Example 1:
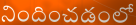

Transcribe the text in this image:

నిందించడంలో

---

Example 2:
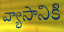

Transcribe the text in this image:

వ్యాసానికి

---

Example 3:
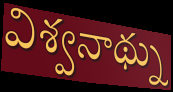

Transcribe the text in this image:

విశ్వనాథ్ను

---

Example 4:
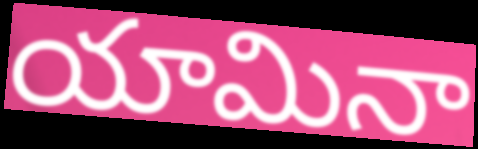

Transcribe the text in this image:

యామినా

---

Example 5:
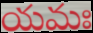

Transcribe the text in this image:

యమః